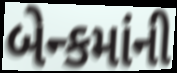
બેન્કમાંની